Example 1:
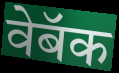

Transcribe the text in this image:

वेबॅक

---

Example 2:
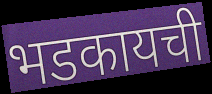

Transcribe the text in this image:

भडकायची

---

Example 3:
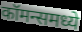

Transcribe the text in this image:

कॉमन्समध्ये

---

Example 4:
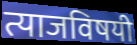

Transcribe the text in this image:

त्याजविषयी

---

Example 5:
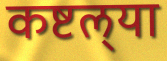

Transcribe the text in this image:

कष्टल्या